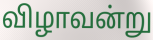
விழாவன்று